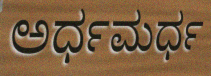
ಅರ್ಧಮರ್ಧ